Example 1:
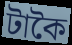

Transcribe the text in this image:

টাকৈ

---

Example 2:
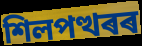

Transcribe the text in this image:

শিলপত্থৰৰ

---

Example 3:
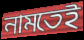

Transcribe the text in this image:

নামতেই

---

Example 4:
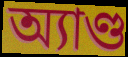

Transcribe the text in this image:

অ্যাণ্ড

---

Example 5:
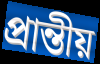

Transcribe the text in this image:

প্ৰান্তীয়